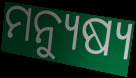
ମନ୍ୟୁଷ୍ୟ